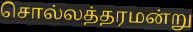
சொல்லத்தரமன்று